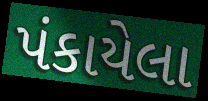
પંકાયેલા